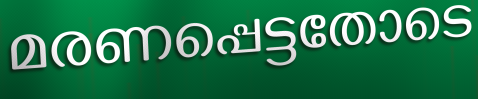
മരണപ്പെട്ടതോടെ